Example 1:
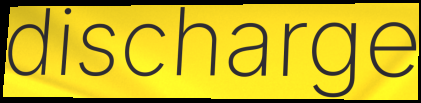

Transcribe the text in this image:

discharge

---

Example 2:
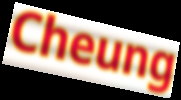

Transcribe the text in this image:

Cheung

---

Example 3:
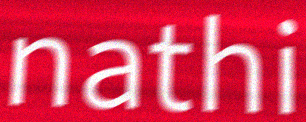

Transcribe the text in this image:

nathi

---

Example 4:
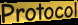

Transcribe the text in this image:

Protocol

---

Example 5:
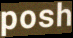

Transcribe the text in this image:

posh